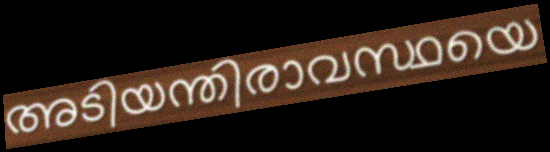
അടിയന്തിരാവസ്ഥയെ